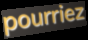
pourriez